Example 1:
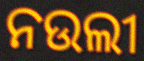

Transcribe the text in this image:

ନଉଲୀ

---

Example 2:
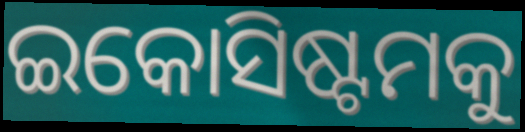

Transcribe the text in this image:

ଇକୋସିଷ୍ଟମକୁ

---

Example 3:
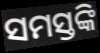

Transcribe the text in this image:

ସମସ୍ତଙ୍କି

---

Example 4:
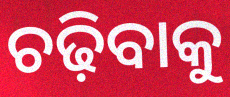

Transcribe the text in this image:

ଚଢ଼ିବାକୁ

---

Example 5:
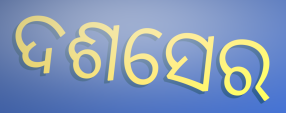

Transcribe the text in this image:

ଦଶସେର